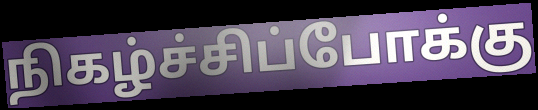
நிகழ்ச்சிப்போக்கு